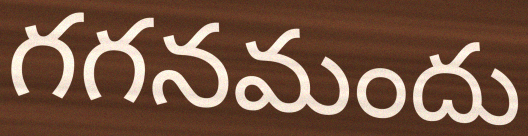
గగనమందు